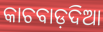
କାଚବାଡ଼ଦିଆ